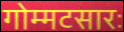
गोम्मटसारः